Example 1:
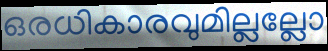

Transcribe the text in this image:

ഒരധികാരവുമില്ലല്ലോ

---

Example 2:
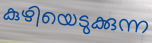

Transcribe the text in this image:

കുഴിയെടുക്കുന്ന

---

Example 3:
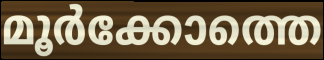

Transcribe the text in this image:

മൂർക്കോത്തെ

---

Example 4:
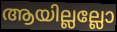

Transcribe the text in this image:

ആയില്ലല്ലോ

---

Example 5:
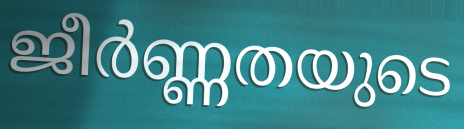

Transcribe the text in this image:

ജീർണ്ണതയുടെ